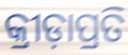
କ୍ରୀଡ଼ାପ୍ରତି